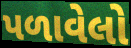
પળાવેલો